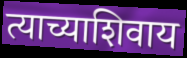
त्याच्याशिवाय